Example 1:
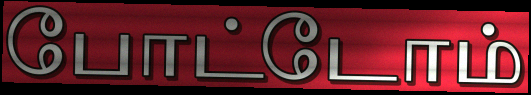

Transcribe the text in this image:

போட்டோம்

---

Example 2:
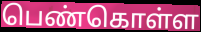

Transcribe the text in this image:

பெண்கொள்ள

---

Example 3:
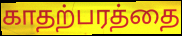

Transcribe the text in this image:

காதற்பரத்தை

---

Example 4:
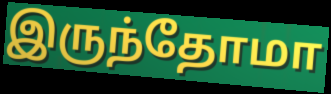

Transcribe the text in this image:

இருந்தோமா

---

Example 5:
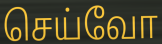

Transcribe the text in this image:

செய்வோ